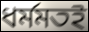
ধর্মমতই